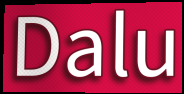
Dalu